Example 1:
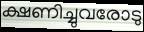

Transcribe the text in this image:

ക്ഷണിച്ചുവരോടു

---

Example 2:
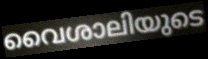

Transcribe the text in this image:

വൈശാലിയുടെ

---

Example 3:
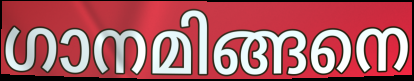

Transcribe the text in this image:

ഗാനമിങ്ങനെ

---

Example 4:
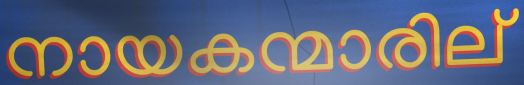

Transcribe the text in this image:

നായകന്മാരില്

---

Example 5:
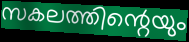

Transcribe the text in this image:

സകലത്തിന്റെയും